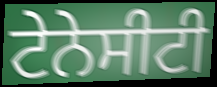
ਟੇਨੇਸੀਟੀ